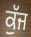
ਕੁੱਜ